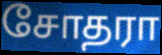
சோதரா